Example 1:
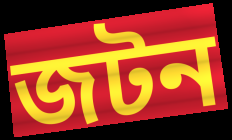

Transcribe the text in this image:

জটন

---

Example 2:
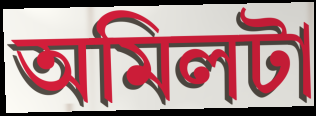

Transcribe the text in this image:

অমিলটা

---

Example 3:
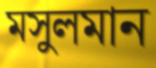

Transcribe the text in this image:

মসুলমান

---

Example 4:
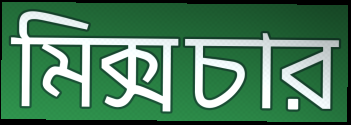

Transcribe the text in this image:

মিক্সচার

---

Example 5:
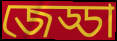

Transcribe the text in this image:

জেড্ডা